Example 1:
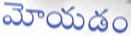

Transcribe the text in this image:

మోయడం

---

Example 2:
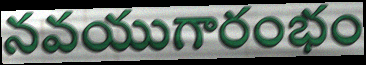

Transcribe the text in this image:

నవయుగారంభం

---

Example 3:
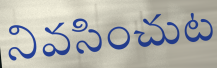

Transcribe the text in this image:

నివసించుట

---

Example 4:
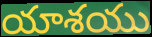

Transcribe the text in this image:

యాశయు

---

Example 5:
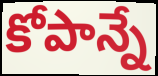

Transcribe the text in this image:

కోపాన్నే